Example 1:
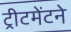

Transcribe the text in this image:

ट्रीटमेंटने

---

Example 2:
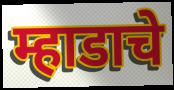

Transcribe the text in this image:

म्हाडाचे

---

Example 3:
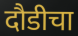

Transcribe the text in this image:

दौडीचा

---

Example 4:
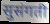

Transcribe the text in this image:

सुसंगती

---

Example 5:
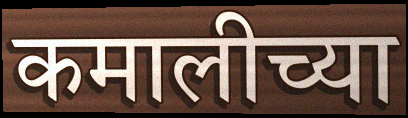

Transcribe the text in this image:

कमालीच्या